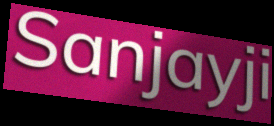
Sanjayji